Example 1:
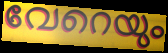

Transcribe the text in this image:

വേറെയും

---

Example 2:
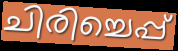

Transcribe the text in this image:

ചിരിച്ചെപ്പ്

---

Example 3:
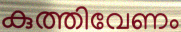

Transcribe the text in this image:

കുത്തിവേണം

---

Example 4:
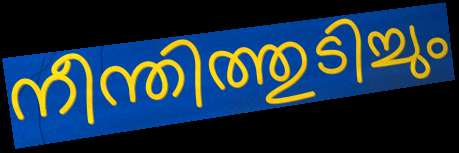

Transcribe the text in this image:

നീന്തിത്തുടിച്ചും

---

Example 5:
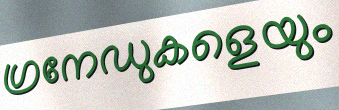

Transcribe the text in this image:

ഗ്രനേഡുകളെയും